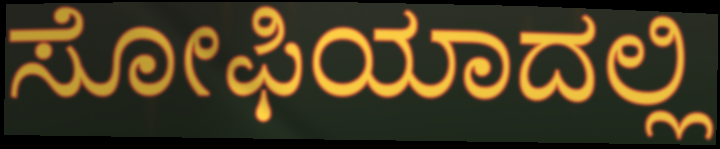
ಸೋಫಿಯಾದಲ್ಲಿ